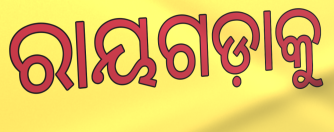
ରାୟଗଡ଼ାକୁ